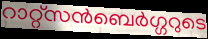
റാറ്റ്സൻബെർഗ്ഗറുടെ